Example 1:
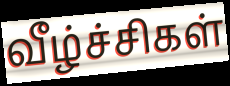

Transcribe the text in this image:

வீழ்ச்சிகள்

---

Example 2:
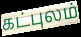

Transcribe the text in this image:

கட்புலம்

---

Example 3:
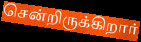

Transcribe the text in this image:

சென்றிருக்கிறார்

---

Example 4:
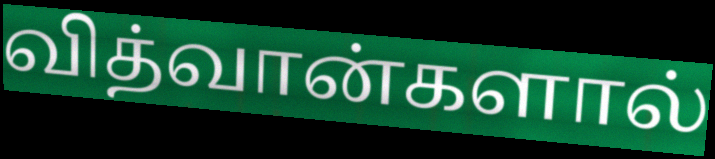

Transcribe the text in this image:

வித்வான்களால்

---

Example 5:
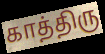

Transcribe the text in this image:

காத்திரு